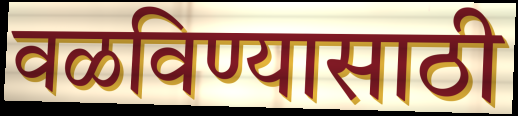
वळविण्यासाठी